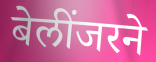
बेलींजरने